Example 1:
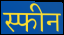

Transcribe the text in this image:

स्फीन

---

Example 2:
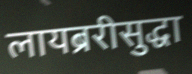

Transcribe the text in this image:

लायब्ररीसुद्धा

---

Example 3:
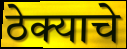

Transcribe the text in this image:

ठेक्याचे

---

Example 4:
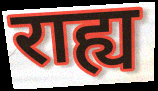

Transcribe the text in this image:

राह्य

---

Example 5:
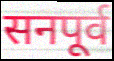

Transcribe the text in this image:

सनपूर्व